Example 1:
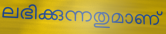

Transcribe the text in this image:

ലഭിക്കുന്നതുമാണ്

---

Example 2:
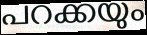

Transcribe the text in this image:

പറക്കയും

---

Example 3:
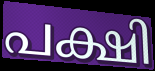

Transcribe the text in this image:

പക്ഷി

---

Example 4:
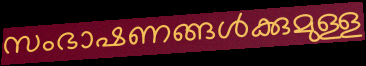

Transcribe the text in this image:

സംഭാഷണങ്ങൾക്കുമുള്ള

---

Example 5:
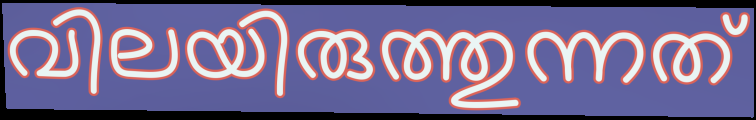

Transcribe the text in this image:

വിലയിരുത്തുന്നത്